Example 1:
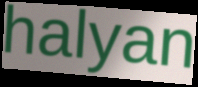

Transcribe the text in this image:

halyan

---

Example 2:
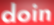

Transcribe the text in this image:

doin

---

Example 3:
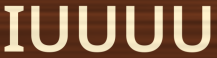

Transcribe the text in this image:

IUUUU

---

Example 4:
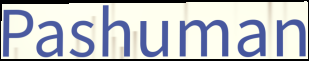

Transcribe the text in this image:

Pashuman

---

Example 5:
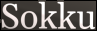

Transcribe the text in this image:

Sokku